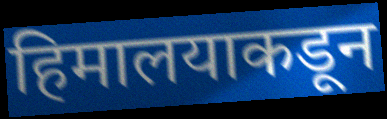
हिमालयाकडून